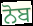
ਨੋਬ